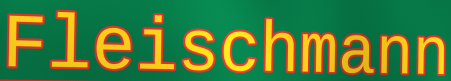
Fleischmann